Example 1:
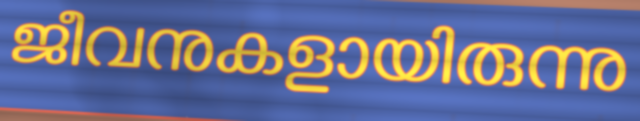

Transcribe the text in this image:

ജീവനുകളായിരുന്നു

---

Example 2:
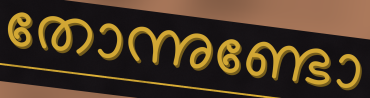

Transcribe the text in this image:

തോന്നുണ്ടോ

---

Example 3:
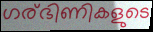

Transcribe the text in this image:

ഗര്ഭിണികളുടെ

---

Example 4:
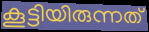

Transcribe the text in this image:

കൂട്ടിയിരുന്നത്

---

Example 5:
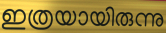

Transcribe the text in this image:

ഇത്രയായിരുന്നു